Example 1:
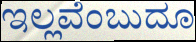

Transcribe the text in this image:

ಇಲ್ಲವೆಂಬುದೂ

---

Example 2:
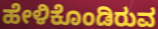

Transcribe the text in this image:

ಹೇಳಿಕೊಂಡಿರುವ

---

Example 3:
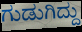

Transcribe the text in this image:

ಗುಡುಗಿದ್ದು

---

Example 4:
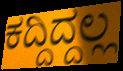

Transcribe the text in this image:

ಕದ್ದಿದ್ದಲ್ಲ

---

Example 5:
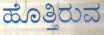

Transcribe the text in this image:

ಹೊತ್ತಿರುವ